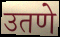
उतणे